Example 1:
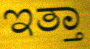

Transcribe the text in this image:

ಇತ್ತಾ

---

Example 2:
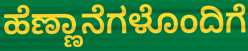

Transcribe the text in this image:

ಹೆಣ್ಣಾನೆಗಳೊಂದಿಗೆ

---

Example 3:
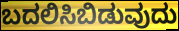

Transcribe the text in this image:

ಬದಲಿಸಿಬಿಡುವುದು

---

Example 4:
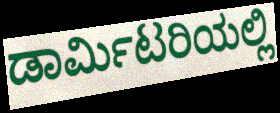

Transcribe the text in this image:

ಡಾರ್ಮಿಟರಿಯಲ್ಲಿ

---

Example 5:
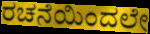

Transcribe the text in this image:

ರಚನೆಯಿಂದಲೇ